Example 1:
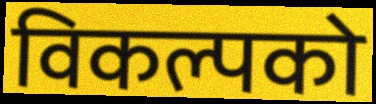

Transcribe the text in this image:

विकल्पको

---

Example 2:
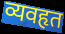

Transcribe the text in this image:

व्यवहृत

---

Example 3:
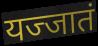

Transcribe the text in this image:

यज्जातं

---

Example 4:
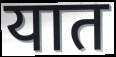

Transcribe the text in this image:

यात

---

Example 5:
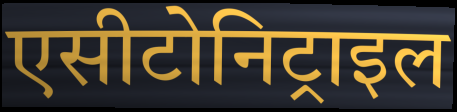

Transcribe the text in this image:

एसीटोनिट्राइल